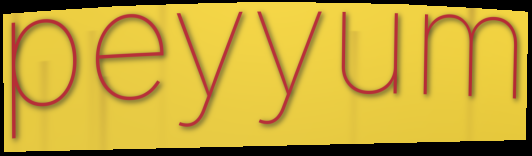
peyyum